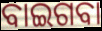
ବାଇଗବା